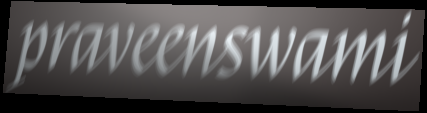
praveenswami